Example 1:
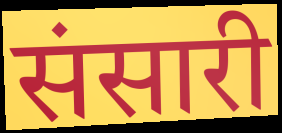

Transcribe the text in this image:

संसारी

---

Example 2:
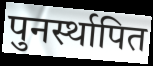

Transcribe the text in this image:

पुनर्स्थापित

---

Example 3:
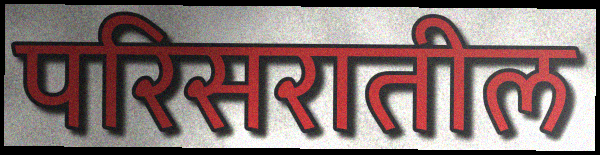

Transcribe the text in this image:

परिसरातील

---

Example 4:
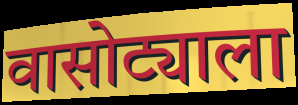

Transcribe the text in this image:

वासोट्याला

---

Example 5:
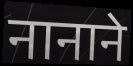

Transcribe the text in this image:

नानाने